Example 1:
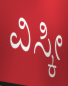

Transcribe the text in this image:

ವಿಸ್ಕೀ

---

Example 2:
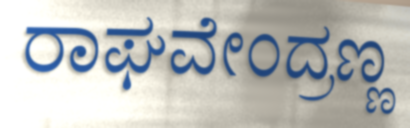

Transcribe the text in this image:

ರಾಘವೇಂದ್ರಣ್ಣ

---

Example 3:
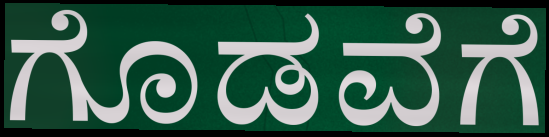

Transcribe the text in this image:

ಗೊಡವೆಗೆ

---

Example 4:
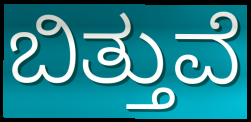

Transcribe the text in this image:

ಬಿತ್ತುವೆ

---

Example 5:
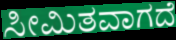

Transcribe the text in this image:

ಸೀಮಿತವಾಗದೆ